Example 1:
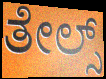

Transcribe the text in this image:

ತೇಲ್ಸ್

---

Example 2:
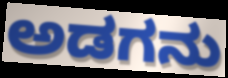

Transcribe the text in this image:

ಅಡಗನು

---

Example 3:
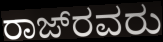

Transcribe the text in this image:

ರಾಜ್‌ರವರು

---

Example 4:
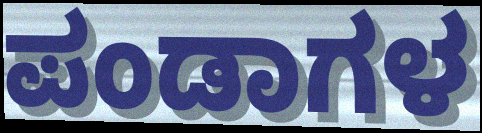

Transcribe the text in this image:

ಪಂಡಾಗಳ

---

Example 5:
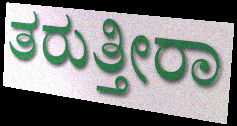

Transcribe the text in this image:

ತರುತ್ತೀರಾ